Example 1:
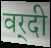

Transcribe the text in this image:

वर्दी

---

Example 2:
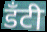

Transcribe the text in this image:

डँटी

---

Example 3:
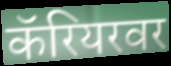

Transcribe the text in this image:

कॅरियरवर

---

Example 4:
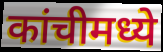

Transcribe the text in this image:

कांचीमध्ये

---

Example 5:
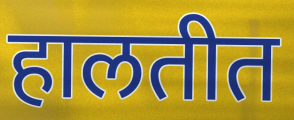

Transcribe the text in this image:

हालतीत